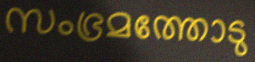
സംഭ്രമത്തോടു